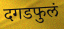
दगडफुलं